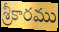
శ్రీకారము